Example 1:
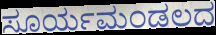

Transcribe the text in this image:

ಸೂರ್ಯಮಂಡಲದ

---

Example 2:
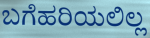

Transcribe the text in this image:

ಬಗೆಹರಿಯಲಿಲ್ಲ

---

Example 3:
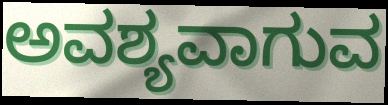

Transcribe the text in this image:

ಅವಶ್ಯವಾಗುವ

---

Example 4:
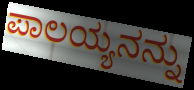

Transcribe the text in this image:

ಪಾಲಯ್ಯನನ್ನು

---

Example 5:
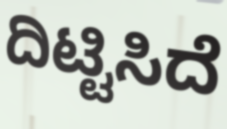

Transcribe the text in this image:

ದಿಟ್ಟಿಸಿದೆ